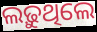
ଲଢ଼ୁଥିଲେ